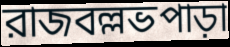
রাজবল্লভপাড়া